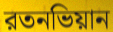
রতনভিয়ান